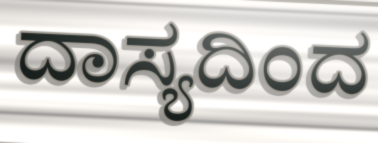
ದಾಸ್ಯದಿಂದ